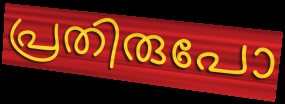
പ്രതിരുപോ